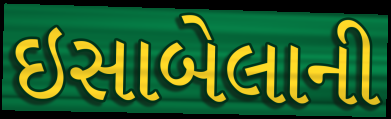
ઇસાબેલાની